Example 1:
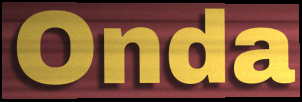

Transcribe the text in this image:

Onda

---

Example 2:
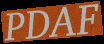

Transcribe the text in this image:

PDAF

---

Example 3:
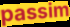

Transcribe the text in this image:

passim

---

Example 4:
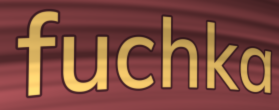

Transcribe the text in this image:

fuchka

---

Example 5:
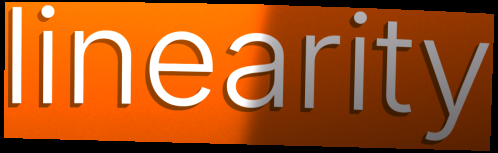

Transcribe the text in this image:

linearity